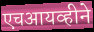
एचआयव्हीने